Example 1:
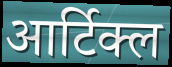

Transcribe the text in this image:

आर्टिक्ल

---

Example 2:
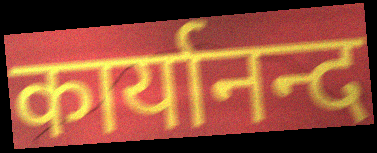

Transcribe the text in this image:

कार्यानन्द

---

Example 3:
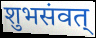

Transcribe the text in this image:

शुभसंवत्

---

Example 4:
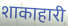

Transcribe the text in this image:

शाकाहारी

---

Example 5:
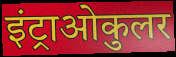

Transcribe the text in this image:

इंट्राओकुलर